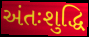
અંતઃશુદ્ધિ